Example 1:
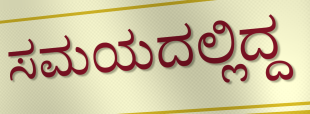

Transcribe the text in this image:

ಸಮಯದಲ್ಲಿದ್ದ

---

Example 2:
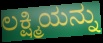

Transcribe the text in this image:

ಲಕ್ಷ್ಮಿಯನ್ನು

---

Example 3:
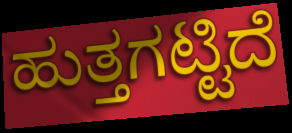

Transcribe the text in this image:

ಹುತ್ತಗಟ್ಟಿದೆ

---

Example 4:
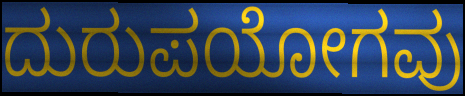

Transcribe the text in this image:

ದುರುಪಯೋಗವು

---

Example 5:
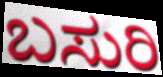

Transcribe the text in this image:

ಬಸುರಿ